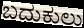
ಬದುಕುಲು